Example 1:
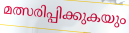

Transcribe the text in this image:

മത്സരിപ്പിക്കുകയും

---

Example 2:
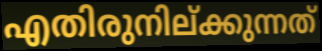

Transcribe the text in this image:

എതിരുനില്ക്കുന്നത്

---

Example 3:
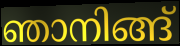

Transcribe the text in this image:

ഞാനിങ്ങ്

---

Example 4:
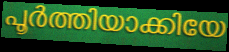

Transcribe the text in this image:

പൂർത്തിയാക്കിയേ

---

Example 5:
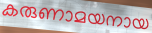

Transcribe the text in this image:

കരുണാമയനായ